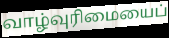
வாழ்வுரிமையைப்